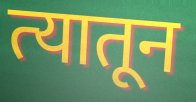
त्‍यातून